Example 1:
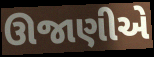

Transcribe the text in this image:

ઊજાણીએ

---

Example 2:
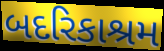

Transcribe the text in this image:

બદરિકાશ્રમ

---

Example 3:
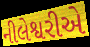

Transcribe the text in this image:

નીલેશ્વરીએ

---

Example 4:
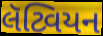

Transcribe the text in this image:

લૅટ્વિયન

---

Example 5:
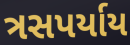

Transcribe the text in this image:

ત્રસપર્યાય